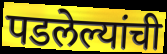
पडलेल्यांची